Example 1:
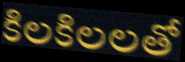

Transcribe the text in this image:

కిలకిలలతో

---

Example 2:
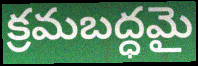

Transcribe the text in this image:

క్రమబద్ధమై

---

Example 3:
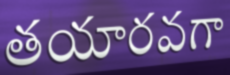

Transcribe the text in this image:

తయారవగా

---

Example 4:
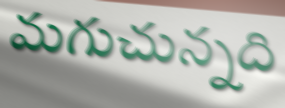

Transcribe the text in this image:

మగుచున్నది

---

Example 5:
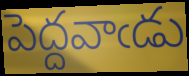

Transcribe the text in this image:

పెద్దవాఁడు